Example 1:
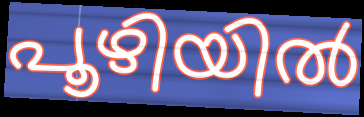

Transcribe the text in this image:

പൂഴിയിൽ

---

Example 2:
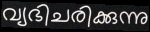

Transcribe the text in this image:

വ്യഭിചരിക്കുന്നു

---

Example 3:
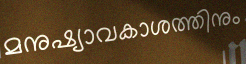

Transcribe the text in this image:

മനുഷ്യാവകാശത്തിനും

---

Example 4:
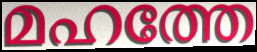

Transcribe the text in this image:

മഹത്തേ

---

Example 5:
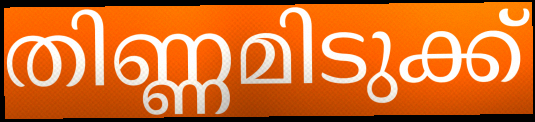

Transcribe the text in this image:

തിണ്ണമിടുക്ക്